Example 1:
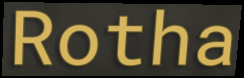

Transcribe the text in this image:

Rotha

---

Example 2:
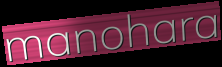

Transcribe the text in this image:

manohara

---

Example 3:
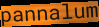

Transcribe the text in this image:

pannalum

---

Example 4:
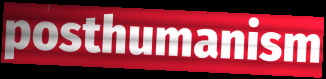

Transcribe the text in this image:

posthumanism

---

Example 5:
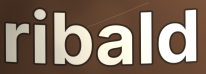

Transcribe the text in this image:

ribald